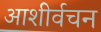
आशीर्वचन